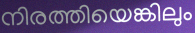
നിരത്തിയെങ്കിലും